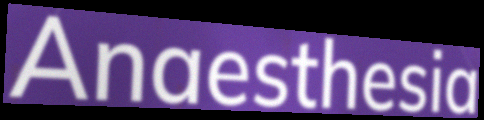
Anaesthesia